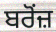
ਬਰੋਂਜ਼